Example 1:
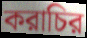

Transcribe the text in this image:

করাচির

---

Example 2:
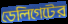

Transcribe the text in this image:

ডেলিগেটের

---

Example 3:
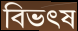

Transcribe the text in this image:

বিভৎষ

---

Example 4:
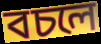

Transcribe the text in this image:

বচলে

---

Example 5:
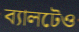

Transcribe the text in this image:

ব্যালটেও